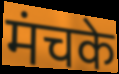
मंचके